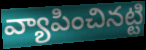
వ్యాపించినట్టి